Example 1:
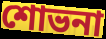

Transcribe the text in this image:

শোভনা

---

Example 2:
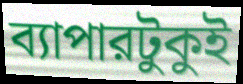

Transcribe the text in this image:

ব্যাপারটুকুই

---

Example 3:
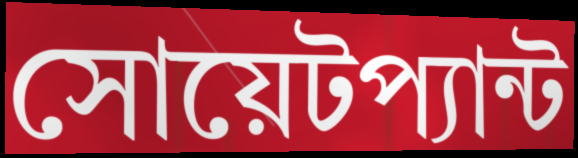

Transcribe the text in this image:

সোয়েটপ্যান্ট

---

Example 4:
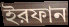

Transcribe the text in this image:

ইরফান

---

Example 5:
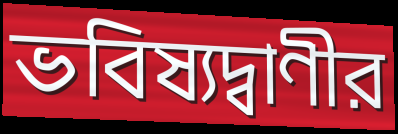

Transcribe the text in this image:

ভবিষ্যদ্বাণীর